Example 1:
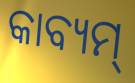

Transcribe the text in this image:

କାବ୍ୟମ୍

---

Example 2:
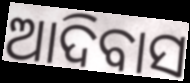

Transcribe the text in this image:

ଆଦିବାସ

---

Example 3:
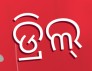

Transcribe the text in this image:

ଡ୍ରିଲ୍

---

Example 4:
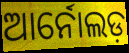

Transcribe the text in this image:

ଆର୍ନୋଲଡ଼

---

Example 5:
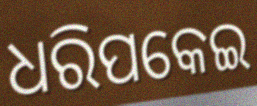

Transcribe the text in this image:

ଧରିପକେଇ